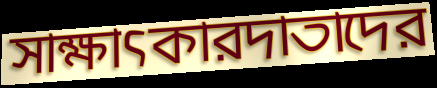
সাক্ষাৎকারদাতাদের